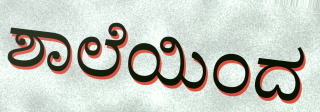
ಶಾಲೆಯಿಂದ